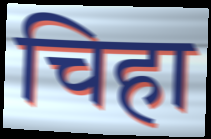
चिहा